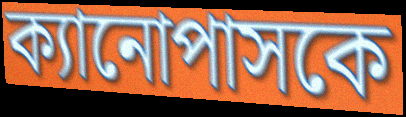
ক্যানোপাসকে